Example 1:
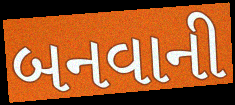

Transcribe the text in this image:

બનવાની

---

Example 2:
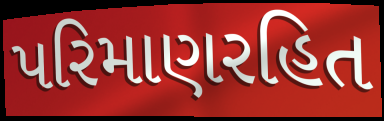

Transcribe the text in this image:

પરિમાણરહિત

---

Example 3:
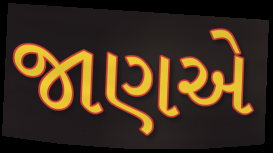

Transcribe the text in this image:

જાણએ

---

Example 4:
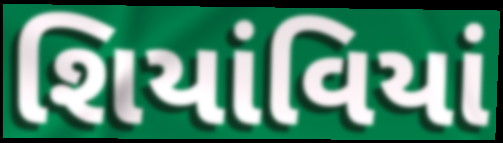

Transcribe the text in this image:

શિયાંવિયાં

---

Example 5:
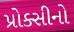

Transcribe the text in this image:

પ્રોક્સીનો